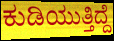
ಕುಡಿಯುತ್ತಿದ್ದೆ